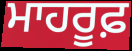
ਮਾਹਰੂਫ਼